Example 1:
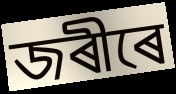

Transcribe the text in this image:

জৰীৰে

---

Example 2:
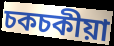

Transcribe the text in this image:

চকচকীয়া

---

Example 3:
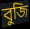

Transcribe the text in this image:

বুজি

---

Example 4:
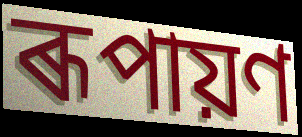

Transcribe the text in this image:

ৰূপায়ণ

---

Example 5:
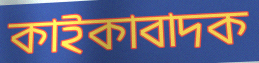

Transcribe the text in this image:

কাইকাবাদক